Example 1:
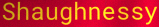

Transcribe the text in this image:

Shaughnessy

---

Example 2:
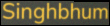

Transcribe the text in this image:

Singhbhum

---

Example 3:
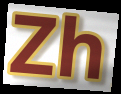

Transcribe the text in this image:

Zh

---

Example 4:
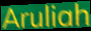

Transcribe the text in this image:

Aruliah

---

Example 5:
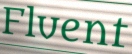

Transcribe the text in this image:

Fluent